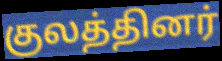
குலத்தினர்